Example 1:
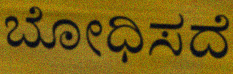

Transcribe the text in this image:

ಬೋಧಿಸದೆ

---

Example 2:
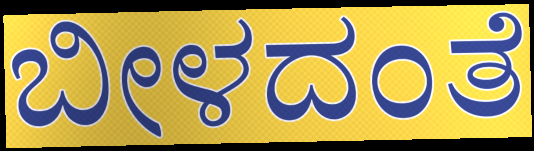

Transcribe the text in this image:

ಬೀಳದಂತೆ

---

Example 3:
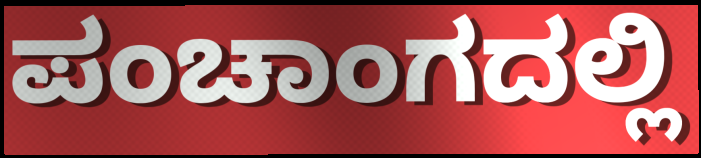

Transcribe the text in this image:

ಪಂಚಾಂಗದಲ್ಲಿ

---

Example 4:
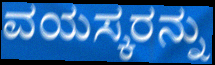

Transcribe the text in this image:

ವಯಸ್ಕರನ್ನು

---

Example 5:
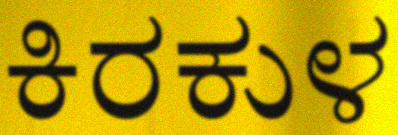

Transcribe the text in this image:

ಕಿರಕುಳ